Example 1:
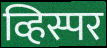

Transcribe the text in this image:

व्हिस्पर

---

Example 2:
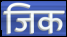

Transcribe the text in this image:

जिक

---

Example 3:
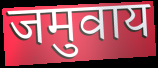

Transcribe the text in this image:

जमुवाय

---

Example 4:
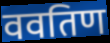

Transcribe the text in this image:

ववतिण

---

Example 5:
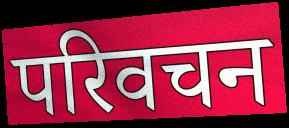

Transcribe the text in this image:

परिवचन